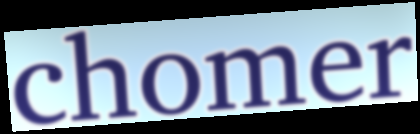
chomer